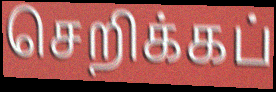
செறிக்கப்